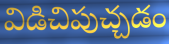
విడిచిపుచ్చడం